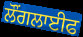
ਲੌਂਗਲਾਈਫ